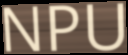
NPU